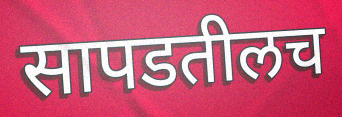
सापडतीलच